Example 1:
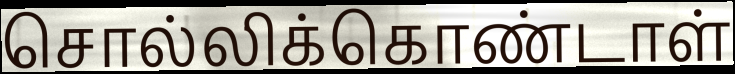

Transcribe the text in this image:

சொல்லிக்கொண்டாள்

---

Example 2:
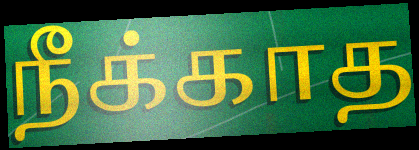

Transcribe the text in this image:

நீக்காத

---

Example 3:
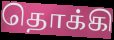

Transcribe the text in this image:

தொக்கி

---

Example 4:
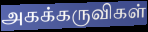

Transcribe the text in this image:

அகக்கருவிகள்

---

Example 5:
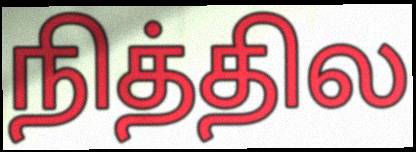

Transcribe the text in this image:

நித்தில